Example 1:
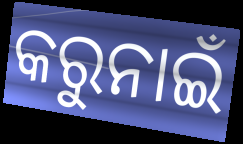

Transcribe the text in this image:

କରୁନାଇଁ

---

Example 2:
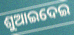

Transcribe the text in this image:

ଶୁଆଇଦେଇ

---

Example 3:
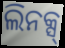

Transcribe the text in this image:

ଲିନକ୍ସ୍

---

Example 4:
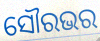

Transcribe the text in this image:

ସୌରଭର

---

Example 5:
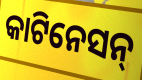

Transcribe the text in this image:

କାଟିନେସନ୍